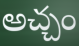
అచ్చం